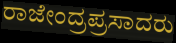
ರಾಜೇಂದ್ರಪ್ರಸಾದರು